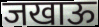
जखाऊ